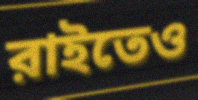
রাইতেও